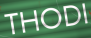
THODI